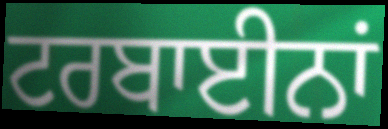
ਟਰਬਾਈਨਾਂ